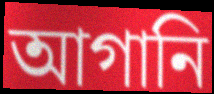
আগানি